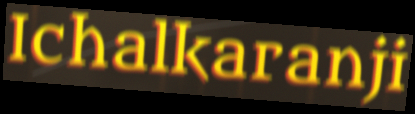
Ichalkaranji